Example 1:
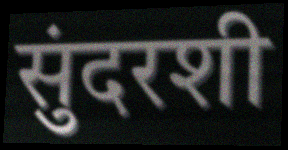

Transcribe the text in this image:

सुंदरशी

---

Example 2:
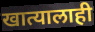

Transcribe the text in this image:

खात्यालाही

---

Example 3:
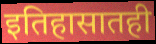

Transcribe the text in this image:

इतिहासातही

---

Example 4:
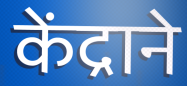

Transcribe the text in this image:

केंद्राने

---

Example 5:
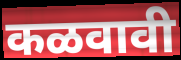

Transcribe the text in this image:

कळवावी